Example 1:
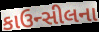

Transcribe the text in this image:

કાઉન્સીલના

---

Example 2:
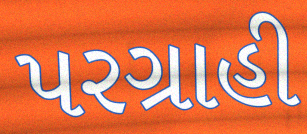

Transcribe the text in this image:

પરગ્રાહી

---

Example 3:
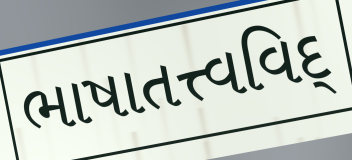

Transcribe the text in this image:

ભાષાતત્ત્વવિદ્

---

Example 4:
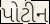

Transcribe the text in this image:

પોટીન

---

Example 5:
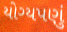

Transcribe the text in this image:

યોગ્યપણું